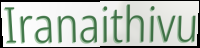
Iranaithivu